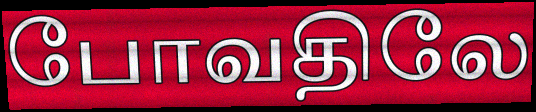
போவதிலே